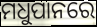
ମଧୁପାନରେ